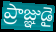
ప్రాజ్ఞుడై